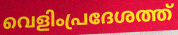
വെളിംപ്രദേശത്ത്